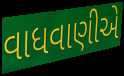
વાધવાણીએ